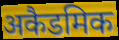
अकैडमिक